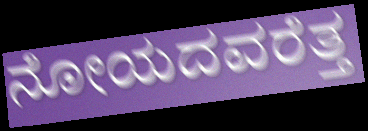
ನೋಯದವರೆತ್ತ